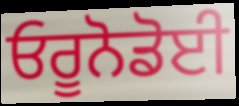
ਓਰੂਨੋਡੋਈ